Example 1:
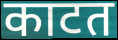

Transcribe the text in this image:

काटत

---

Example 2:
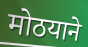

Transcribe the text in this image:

मोठयाने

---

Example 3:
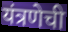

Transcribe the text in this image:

यंत्रणेची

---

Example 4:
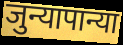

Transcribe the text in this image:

जुन्यापान्या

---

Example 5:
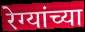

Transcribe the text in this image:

रेग्यांच्या